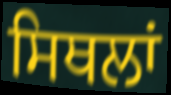
ਸਿਥਲਾਂ